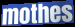
mothes